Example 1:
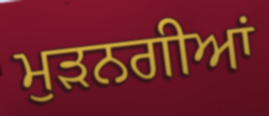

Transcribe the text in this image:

ਮੁੜਨਗੀਆਂ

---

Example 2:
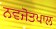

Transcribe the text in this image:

ਨਵਜੋਤਪਾਲ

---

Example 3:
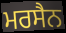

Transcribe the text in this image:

ਮਰਸੈਨ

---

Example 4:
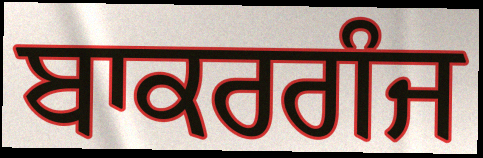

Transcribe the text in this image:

ਬਾਕਰਗੰਜ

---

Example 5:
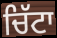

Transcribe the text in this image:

ਚਿੱਟਾ